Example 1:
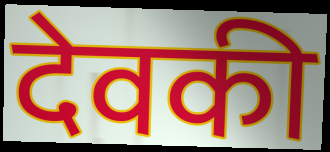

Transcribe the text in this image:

देवकी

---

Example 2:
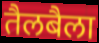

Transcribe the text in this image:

तैलबैला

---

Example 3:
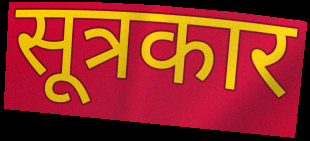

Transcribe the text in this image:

सूत्रकार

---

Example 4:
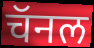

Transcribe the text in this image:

चॅनल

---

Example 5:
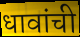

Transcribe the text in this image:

धावांची